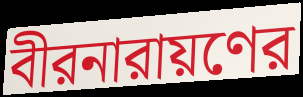
বীরনারায়ণের